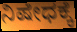
ನಿಷೇಧಕ್ಕೆ